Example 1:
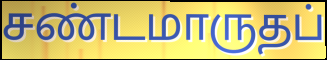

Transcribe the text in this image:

சண்டமாருதப்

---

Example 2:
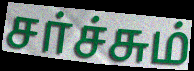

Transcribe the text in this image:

சர்ச்சும்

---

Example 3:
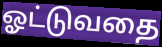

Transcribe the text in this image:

ஓட்டுவதை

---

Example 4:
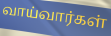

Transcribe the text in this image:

வாய்வார்கள்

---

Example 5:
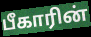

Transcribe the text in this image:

பீகாரின்